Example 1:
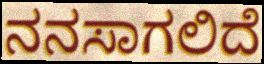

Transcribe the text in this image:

ನನಸಾಗಲಿದೆ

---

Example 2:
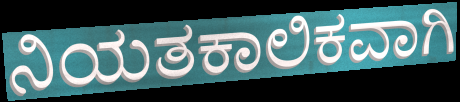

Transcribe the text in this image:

ನಿಯತಕಾಲಿಕವಾಗಿ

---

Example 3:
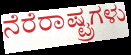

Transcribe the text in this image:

ನೆರೆರಾಷ್ಟ್ರಗಳು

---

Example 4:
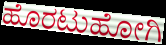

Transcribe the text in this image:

ಹೊರಟುಹೋಗಿ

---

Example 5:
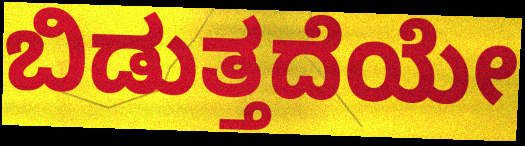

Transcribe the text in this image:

ಬಿಡುತ್ತದೆಯೇ